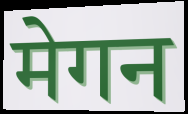
मेगन